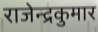
राजेन्द्रकुमार